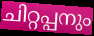
ചിറ്റപ്പനും